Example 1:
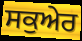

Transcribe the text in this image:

ਸਕੁਅੇਰ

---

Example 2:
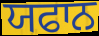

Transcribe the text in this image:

ਯਫਾਨ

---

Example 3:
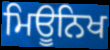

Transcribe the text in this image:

ਮਿਊਨਿਖ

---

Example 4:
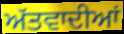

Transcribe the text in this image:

ਅੱਤਵਾਦੀਆਂ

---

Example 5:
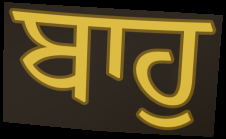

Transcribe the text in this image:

ਬਾਹੁ